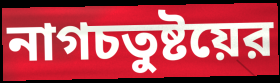
নাগচতুষ্টয়ের